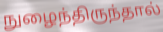
நுழைந்திருந்தால்